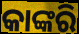
କାଙ୍କରି